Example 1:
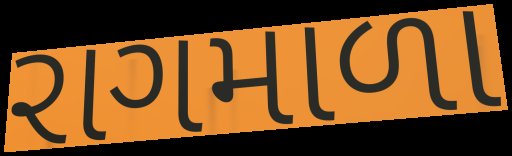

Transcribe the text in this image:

રાગમાળા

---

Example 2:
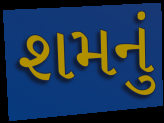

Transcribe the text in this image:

શમનું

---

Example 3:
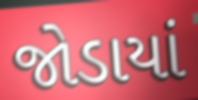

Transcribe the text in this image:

જોડાયાં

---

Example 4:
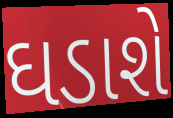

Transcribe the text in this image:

ઘડાશે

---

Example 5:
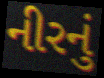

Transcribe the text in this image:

નીરનું